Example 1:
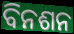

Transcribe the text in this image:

ବିନଶନ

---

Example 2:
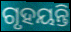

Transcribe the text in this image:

ଗୃହୟନ୍ତି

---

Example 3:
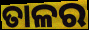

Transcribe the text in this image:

ତାଳର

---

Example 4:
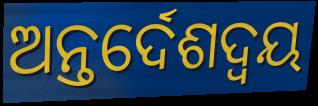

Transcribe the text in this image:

ଅନ୍ତର୍ଦେଶଦ୍ଵୟ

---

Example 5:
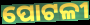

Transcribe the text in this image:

ପୋଟଳୀ